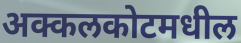
अक्कलकोटमधील